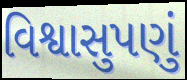
વિશ્વાસુપણું